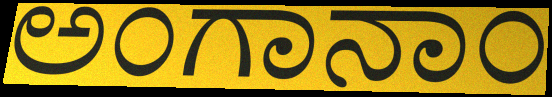
ಅಂಗಾನಾಂ